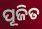
ପୂଜିତ